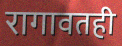
रागावतही